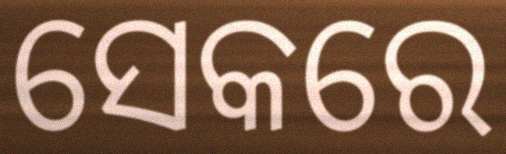
ସେକରେ